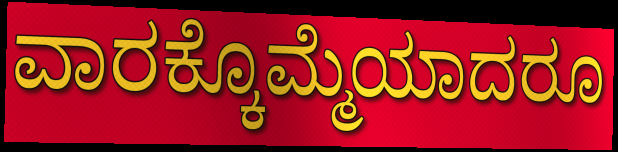
ವಾರಕ್ಕೊಮ್ಮೆಯಾದರೂ